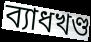
ব্যাধখণ্ড